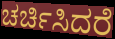
ಚರ್ಚಿಸಿದರೆ